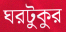
ঘরটুকুর